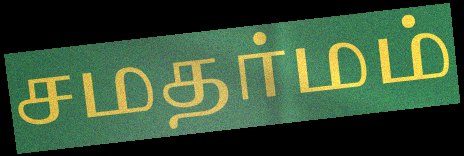
சமதர்மம்